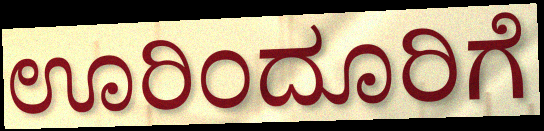
ಊರಿಂದೂರಿಗೆ